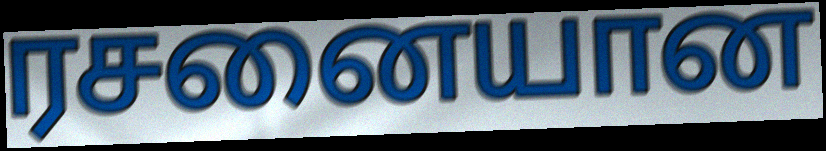
ரசனையான